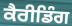
ਕੈਰੀਡਿੰਗ